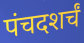
पंचदशर्चं